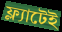
ফ্ল্যাটেই